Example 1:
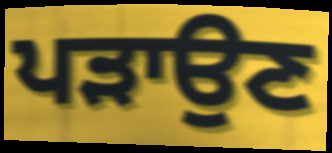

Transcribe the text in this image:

ਪੜਾਉਣ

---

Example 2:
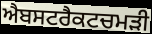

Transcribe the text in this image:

ਐਬਸਟਰੈਕਟਚਮੜੀ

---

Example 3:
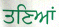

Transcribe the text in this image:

ਤਣਿਆਂ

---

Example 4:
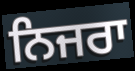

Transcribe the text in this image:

ਨਿਜਰਾ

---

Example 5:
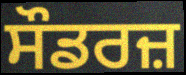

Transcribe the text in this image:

ਸੌਡਰਜ਼